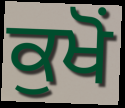
ਕੁਖੋਂ